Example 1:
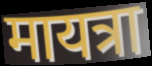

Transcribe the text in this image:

मायत्रा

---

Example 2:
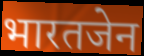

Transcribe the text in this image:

भारतजेन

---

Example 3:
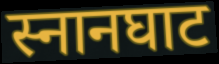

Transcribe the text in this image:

स्नानघाट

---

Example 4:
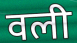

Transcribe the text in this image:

वली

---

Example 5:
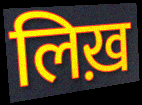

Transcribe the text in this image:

लिख़